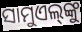
ସାମୁଏଲ୍‌ଙ୍କୁ